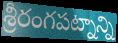
శ్రీరంగపట్నాన్ని